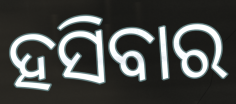
ହସିବାର